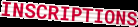
INSCRIPTIONS